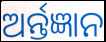
ଅର୍ନ୍ତଜ୍ଞାନ